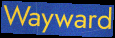
Wayward